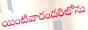
యింటివారందరిలోను